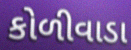
કોળીવાડા